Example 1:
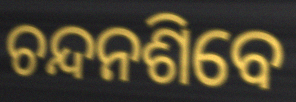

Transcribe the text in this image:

ଚନ୍ଦନଶିବେ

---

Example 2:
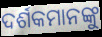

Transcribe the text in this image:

ଦର୍ଶକମାନଙ୍କୁ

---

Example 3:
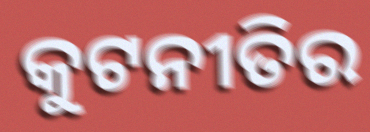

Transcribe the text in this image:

କୁଟନୀତିର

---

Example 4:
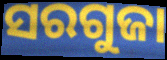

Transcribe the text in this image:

ସରଗୁଜା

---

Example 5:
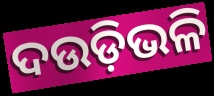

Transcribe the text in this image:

ଦଉଡ଼ିଭଳି